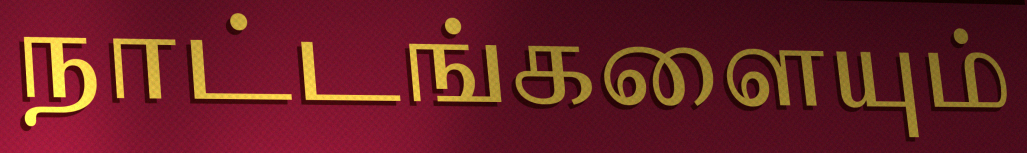
நாட்டங்களையும்